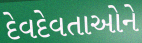
દેવદેવતાઓને